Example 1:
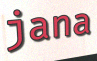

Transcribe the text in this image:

jana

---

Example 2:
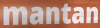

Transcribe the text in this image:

mantan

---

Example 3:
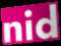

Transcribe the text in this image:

nid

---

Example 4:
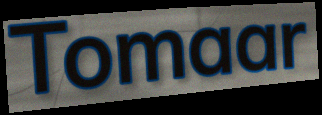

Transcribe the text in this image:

Tomaar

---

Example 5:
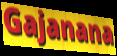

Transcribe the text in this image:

Gajanana